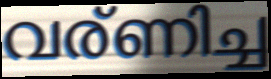
വര്ണിച്ച